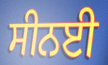
ਸੀਨਈ